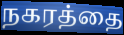
நகரத்தை